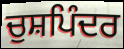
ਚੁਸ਼ਪਿੰਦਰ